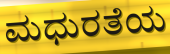
ಮಧುರತೆಯ